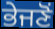
ਭੇਜਣੋਂ